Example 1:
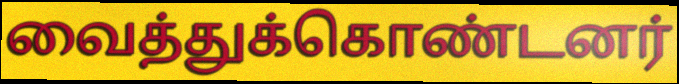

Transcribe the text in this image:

வைத்துக்கொண்டனர்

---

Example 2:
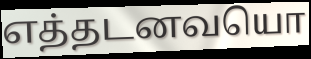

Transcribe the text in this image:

எத்தடனவயொ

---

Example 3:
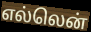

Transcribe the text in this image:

எல்லென்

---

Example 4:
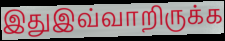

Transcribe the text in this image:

இதுஇவ்வாறிருக்க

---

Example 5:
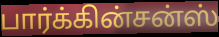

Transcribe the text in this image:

பார்க்கின்சன்ஸ்